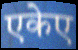
एकेए